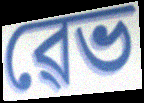
ৱেভ